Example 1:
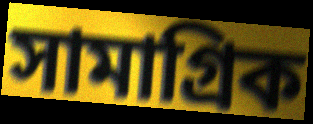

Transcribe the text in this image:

সামাগ্রিক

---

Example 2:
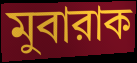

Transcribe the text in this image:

মুবারাক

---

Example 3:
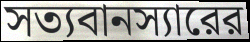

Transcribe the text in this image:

সত্যবানস্যারের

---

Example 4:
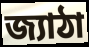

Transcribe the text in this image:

জ্যাঠা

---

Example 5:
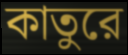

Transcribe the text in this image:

কাতুরে